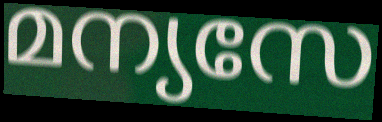
മന്യസേ